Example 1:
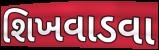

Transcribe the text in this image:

શિખવાડવા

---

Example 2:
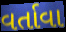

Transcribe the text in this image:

વર્તાવા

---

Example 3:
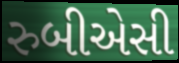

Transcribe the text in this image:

રુબીએસી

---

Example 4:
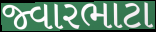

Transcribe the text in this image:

જ્વારભાટા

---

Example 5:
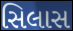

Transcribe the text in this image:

સિલાસ